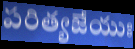
పరిత్యజేయుః